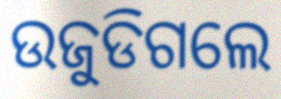
ଉଜୁଡିଗଲେ